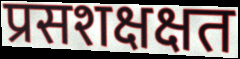
प्रसशक्षक्षत